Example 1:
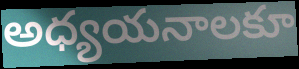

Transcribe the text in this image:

అధ్యయనాలకూ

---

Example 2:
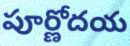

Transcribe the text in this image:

పూర్ణోదయ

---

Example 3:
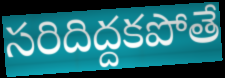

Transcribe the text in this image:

సరిదిద్దకపోతే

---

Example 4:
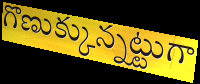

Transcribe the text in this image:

గొణుక్కున్నట్టుగా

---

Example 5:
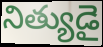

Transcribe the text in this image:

నిత్యుడై